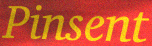
Pinsent